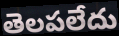
తెలపలేదు